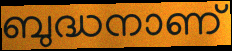
ബുദ്ധനാണ്